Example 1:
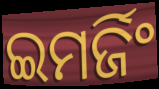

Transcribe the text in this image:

ଇମର୍ଜିଂ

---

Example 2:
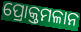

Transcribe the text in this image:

ପ୍ରୋକ୍ତମଳାନ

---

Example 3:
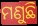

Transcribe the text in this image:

ମଣୁଛି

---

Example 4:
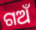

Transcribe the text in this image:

ଗଅଁ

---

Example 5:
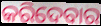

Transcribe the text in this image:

କରିଦେବାର